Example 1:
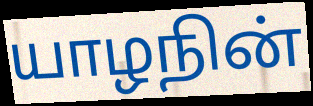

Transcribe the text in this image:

யாழநின்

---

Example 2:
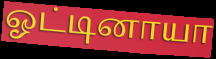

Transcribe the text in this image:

ஓட்டினாயா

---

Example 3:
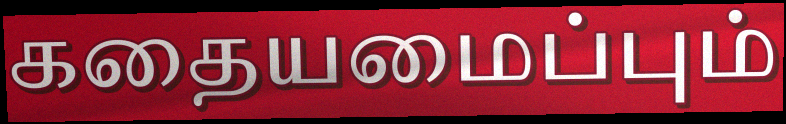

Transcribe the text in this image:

கதையமைப்பும்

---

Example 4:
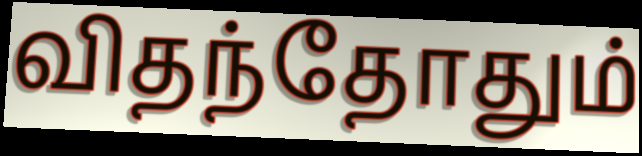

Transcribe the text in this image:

விதந்தோதும்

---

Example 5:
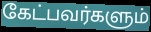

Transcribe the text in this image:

கேட்பவர்களும்